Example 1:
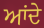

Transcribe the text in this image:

ਆਂਦੇ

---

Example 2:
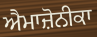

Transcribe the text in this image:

ਐਮਾਜ਼ੋਨੀਕਾ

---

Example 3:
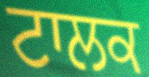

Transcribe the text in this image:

ਟਾਲਕ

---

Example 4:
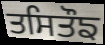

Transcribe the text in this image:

ਤਸਿਤੌਙ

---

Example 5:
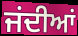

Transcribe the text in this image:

ਜਂਦੀਆਂ